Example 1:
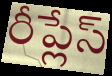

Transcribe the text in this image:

రీప్లేస్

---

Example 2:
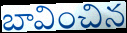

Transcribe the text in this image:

బావించిన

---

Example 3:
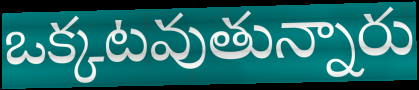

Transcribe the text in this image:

ఒక్కటవుతున్నారు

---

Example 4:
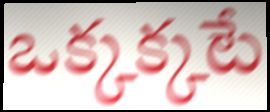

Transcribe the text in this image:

ఒక్కక్కటే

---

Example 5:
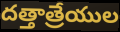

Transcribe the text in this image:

దత్తాత్రేయుల